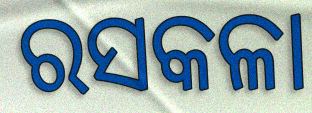
ରସକଳା